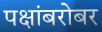
पक्षांबरोबर